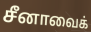
சீனாவைக்